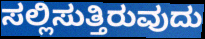
ಸಲ್ಲಿಸುತ್ತಿರುವುದು